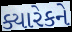
ક્યારેકને